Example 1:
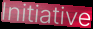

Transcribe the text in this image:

Initiative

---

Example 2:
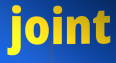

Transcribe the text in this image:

joint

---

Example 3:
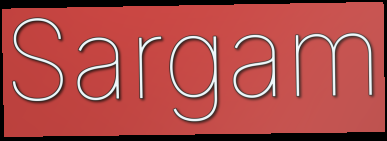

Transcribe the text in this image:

Sargam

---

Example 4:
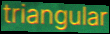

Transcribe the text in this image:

triangular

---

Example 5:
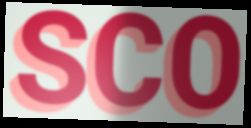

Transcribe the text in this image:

SCO